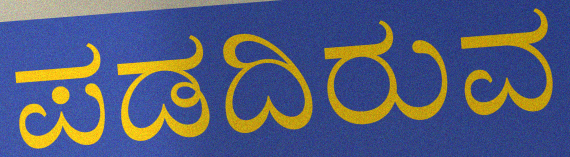
ಪಡದಿರುವ